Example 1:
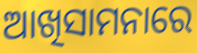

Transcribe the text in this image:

ଆଖିସାମନାରେ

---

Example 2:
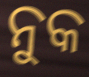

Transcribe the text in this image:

ନୁକ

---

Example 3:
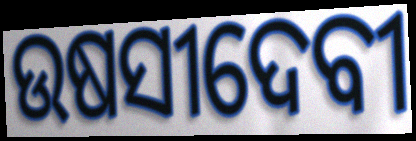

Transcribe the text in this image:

ଉଷସୀଦେବୀ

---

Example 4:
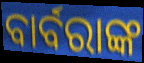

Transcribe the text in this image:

ବାର୍ବରାଙ୍କ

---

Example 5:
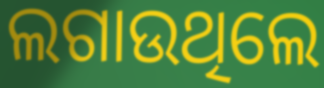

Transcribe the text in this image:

ଲଗାଉଥିଲେ